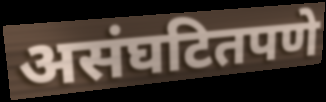
असंघटितपणे